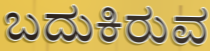
ಬದುಕಿರುವ